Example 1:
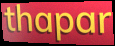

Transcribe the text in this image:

thapar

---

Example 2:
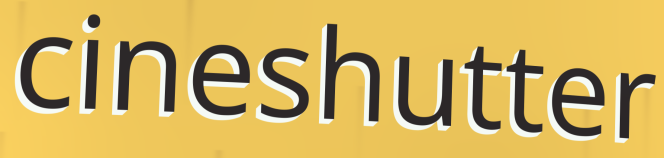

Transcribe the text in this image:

cineshutter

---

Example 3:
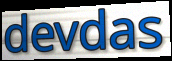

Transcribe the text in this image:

devdas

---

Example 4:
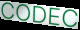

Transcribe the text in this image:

CODEC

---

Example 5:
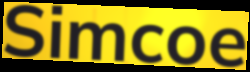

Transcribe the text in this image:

Simcoe